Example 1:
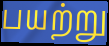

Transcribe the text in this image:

பயற்று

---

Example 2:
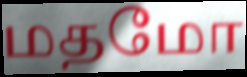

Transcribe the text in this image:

மதமோ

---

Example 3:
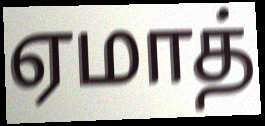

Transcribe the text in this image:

ஏமாத்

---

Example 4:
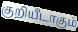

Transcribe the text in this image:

குறியீடாகும்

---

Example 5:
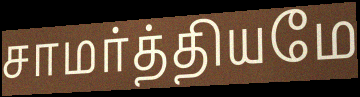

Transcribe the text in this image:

சாமர்த்தியமே